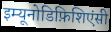
इम्यूनोडिफ़िशिएंसी